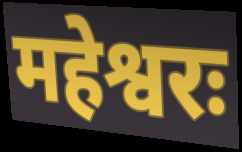
महेश्वरः